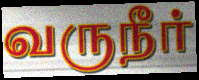
வருநீர்